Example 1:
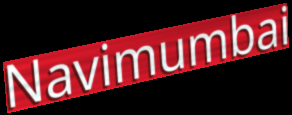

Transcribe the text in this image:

Navimumbai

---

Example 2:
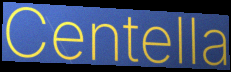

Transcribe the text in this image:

Centella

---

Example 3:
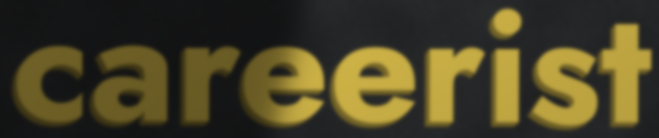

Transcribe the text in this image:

careerist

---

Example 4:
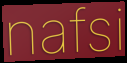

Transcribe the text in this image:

nafsi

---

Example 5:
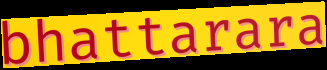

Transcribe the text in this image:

bhattarara